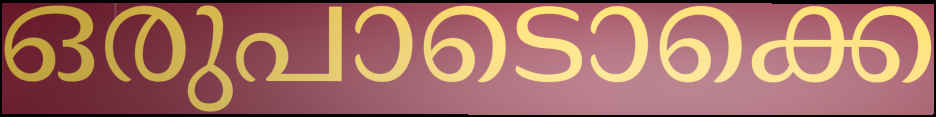
ഒരുപാടൊക്കെ